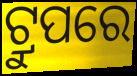
ଟ୍ରୁପରେ